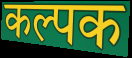
कल्पक